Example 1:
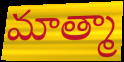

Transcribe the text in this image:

మాత్మా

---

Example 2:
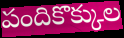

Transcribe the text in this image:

పందికొక్కుల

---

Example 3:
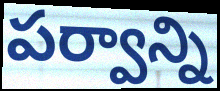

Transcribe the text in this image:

పర్వాన్ని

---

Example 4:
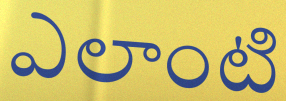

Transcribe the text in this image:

ఎలాంటి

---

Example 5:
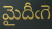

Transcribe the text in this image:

మైదీఁగె